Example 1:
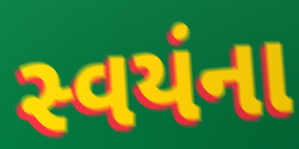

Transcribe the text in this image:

સ્વયંના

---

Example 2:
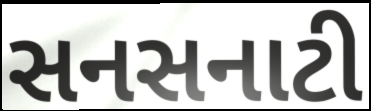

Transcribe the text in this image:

સનસનાટી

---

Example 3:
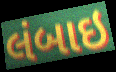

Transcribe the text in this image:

લંબાઇ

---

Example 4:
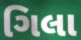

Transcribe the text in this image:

ગિલા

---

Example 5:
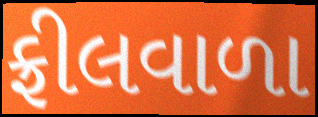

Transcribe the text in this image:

ફ્રીલવાળા